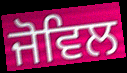
ਜੋਵਿਲ